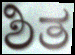
ಶಿತ